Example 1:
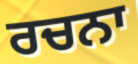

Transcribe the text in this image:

ਰਚਨਾ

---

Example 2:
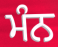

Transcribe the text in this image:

ਮੰਨ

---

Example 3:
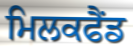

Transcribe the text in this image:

ਮਿਲਕਫੈਂਡ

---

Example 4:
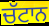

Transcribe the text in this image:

ਚੱਟਾਨ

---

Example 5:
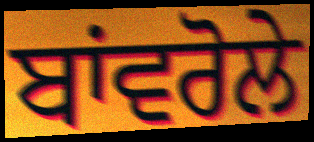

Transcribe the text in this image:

ਬਾਂਵਰੋਲੇ